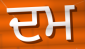
ਦਮ